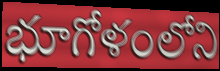
భూగోళంలోని